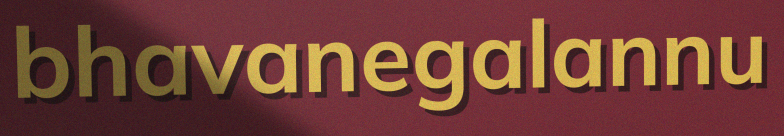
bhavanegalannu